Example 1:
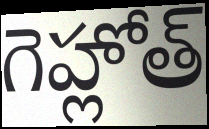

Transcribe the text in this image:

గెహ్లోత్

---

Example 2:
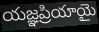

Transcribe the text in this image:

యజ్ఞప్రియాయై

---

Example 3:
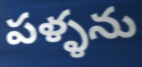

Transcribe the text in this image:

పళ్ళను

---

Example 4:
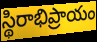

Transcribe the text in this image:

స్థిరాభిప్రాయం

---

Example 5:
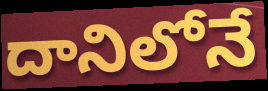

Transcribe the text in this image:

దానిలోనే